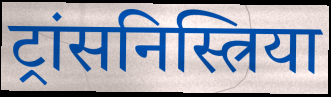
ट्रांसनिस्त्रिया